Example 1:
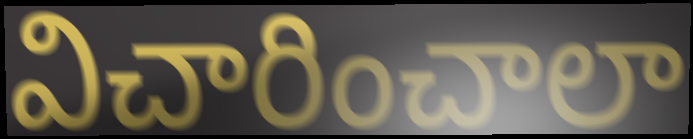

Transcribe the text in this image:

విచారించాలా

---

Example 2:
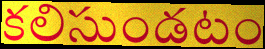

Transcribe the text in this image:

కలిసుండటం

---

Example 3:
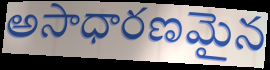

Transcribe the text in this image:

అసాధారణమైన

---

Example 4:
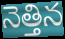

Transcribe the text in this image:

నెత్తిన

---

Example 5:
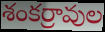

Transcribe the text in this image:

శంకర్రావుల